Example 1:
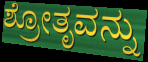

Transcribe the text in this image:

ಶ್ರೋತೃವನ್ನು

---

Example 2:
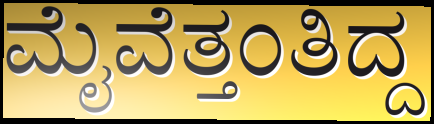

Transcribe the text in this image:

ಮೈವೆತ್ತಂತಿದ್ದ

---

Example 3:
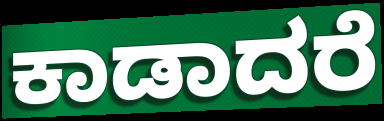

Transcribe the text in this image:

ಕಾಡಾದರೆ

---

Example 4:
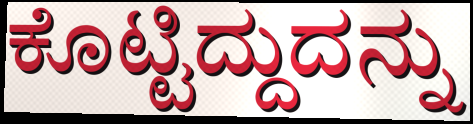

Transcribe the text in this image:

ಕೊಟ್ಟಿದ್ದುದನ್ನು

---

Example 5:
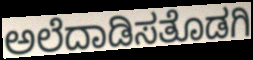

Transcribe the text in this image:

ಅಲೆದಾಡಿಸತೊಡಗಿ